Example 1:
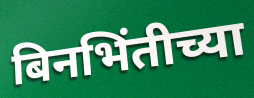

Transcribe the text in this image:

बिनभिंतीच्या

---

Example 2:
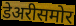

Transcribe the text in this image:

डेअरीसमोर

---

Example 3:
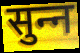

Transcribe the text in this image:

सुन्न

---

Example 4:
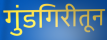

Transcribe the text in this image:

गुंडगिरीतून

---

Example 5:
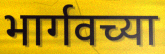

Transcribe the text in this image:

भार्गवच्या